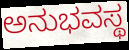
ಅನುಭವಸ್ಥ